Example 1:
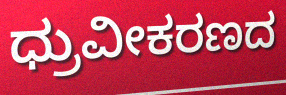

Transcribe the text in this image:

ಧ್ರುವೀಕರಣದ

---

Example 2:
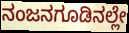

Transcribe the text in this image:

ನಂಜನಗೂಡಿನಲ್ಲೇ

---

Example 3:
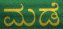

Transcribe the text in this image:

ಮಡೆ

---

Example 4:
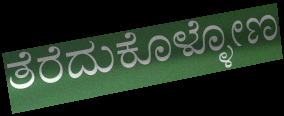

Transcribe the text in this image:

ತೆರೆದುಕೊಳ್ಳೋಣ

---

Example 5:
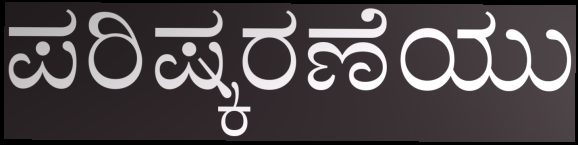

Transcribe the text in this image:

ಪರಿಷ್ಕರಣೆಯು